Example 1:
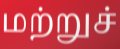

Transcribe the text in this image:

மற்றுச்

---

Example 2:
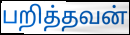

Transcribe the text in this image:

பறித்தவன்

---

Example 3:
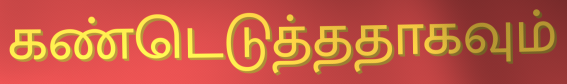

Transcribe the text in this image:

கண்டெடுத்ததாகவும்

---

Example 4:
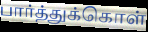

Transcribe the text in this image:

பார்த்துக்கொள்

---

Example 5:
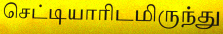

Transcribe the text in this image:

செட்டியாரிடமிருந்து